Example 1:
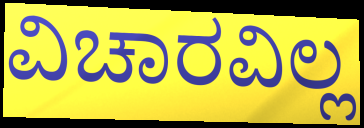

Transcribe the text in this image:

ವಿಚಾರವಿಲ್ಲ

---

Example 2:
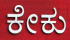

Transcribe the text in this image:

ಕೇಕು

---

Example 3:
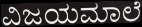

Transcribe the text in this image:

ವಿಜಯಮಾಲೆ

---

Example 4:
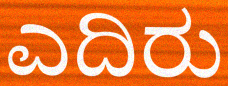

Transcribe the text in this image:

ಎದಿರು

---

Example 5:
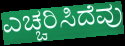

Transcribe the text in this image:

ಎಚ್ಚರಿಸಿದೆವು